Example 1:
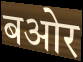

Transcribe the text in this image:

बओर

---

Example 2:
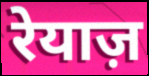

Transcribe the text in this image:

रेयाज़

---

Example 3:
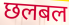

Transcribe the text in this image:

छलबल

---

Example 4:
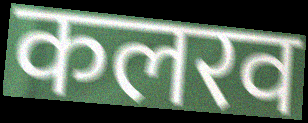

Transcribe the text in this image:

कलरव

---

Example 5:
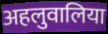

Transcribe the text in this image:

अहलुवालिया